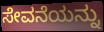
ಸೇವನೆಯನ್ನು